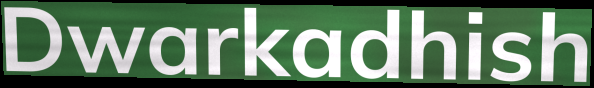
Dwarkadhish